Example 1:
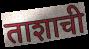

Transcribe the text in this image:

ताशाची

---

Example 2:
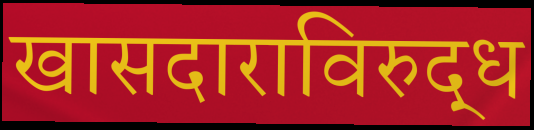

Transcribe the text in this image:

खासदाराविरुद्ध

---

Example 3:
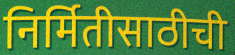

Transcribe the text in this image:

निर्मितीसाठीची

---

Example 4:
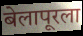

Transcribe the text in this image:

बेलापूरला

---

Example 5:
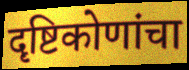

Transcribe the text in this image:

दृष्टिकोणांचा